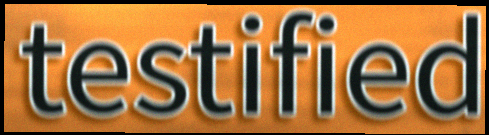
testified